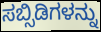
ಸಬ್ಸಿಡಿಗಳನ್ನು